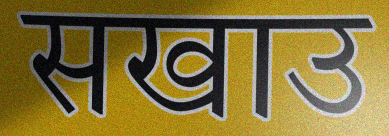
सखाउ